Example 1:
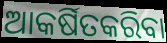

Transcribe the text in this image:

ଆକର୍ଷିତକରିବା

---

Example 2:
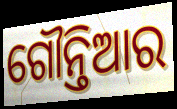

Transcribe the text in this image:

ଗୌନ୍ତିଆର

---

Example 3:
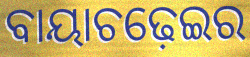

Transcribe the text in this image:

ବାୟାଚଢ଼େଇର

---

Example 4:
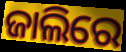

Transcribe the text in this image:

ଜାଲିରେ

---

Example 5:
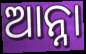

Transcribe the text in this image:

ଆନ୍ନା